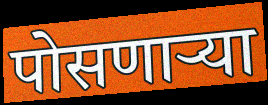
पोसणाऱ्या